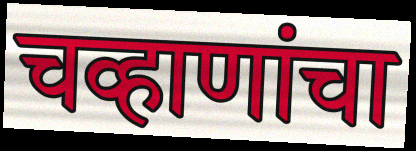
चव्हाणांचा